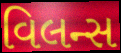
વિલન્સ